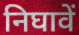
निघावें